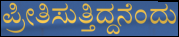
ಪ್ರೀತಿಸುತ್ತಿದ್ದನೆಂದು